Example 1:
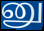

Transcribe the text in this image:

னு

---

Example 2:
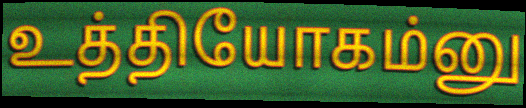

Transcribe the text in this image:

உத்தியோகம்னு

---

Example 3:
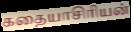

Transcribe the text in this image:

கதையாசிரியன்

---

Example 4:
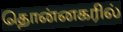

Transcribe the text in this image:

தொன்னகரில்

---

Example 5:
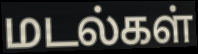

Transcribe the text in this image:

மடல்கள்